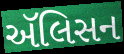
ઍલિસન